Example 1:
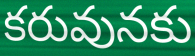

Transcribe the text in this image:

కరువునకు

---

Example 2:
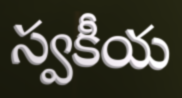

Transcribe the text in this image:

స్వకీయ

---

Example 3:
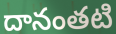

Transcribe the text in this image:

దానంతటి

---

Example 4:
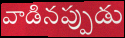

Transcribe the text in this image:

వాడినప్పుడు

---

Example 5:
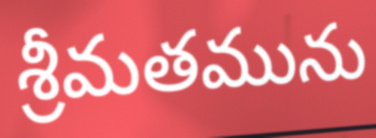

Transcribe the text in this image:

శ్రీమతమును